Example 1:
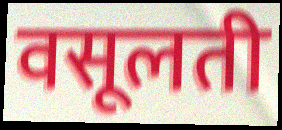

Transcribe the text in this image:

वसूलती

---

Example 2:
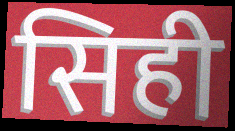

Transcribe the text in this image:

सिही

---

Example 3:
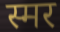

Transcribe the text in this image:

स्मर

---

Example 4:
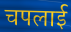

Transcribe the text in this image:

चपलाई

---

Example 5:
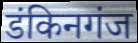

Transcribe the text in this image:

डंकिनगंज